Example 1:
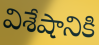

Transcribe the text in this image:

విశేషానికి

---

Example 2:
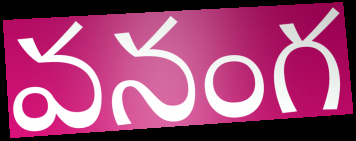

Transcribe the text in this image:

వనంగ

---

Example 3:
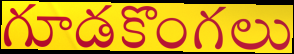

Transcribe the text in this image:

గూడకొంగలు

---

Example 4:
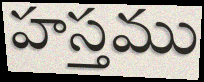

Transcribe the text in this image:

హస్తము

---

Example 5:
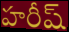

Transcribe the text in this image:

హరీష్